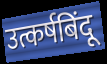
उत्कर्षबिंदू